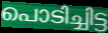
പൊടിച്ചിട്ട